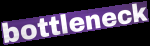
bottleneck